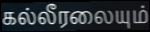
கல்லீரலையும்